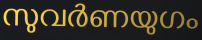
സുവർണയുഗം